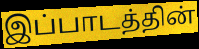
இப்பாடத்தின்